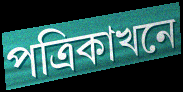
পত্ৰিকাখনে